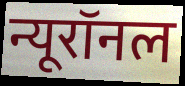
न्यूरॉनल